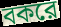
বকরে